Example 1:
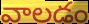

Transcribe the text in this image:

వాలడం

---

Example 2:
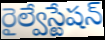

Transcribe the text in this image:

రైల్వేస్టేషన్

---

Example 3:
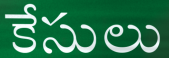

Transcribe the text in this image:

కేసులు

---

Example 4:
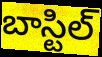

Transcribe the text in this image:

బాస్టిల్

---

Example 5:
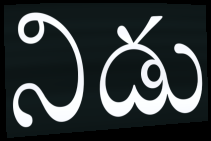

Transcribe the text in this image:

నిడు